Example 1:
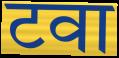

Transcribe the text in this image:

टवा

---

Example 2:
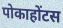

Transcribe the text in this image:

पोकाहोंटस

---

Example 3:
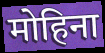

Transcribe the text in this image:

मोहिना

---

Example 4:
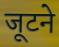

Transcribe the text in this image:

जूटने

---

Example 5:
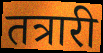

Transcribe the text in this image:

तत्रारी